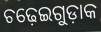
ଚଢ଼େଇଗୁଡ଼ାକ